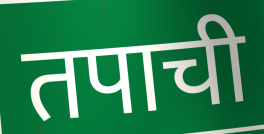
तपाची